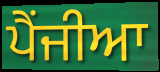
ਪੈਂਜੀਆ